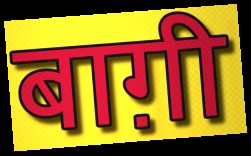
बाग़ी